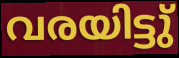
വരയിട്ടു്